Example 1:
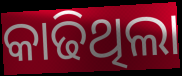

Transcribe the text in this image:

କାଢିଥିଲା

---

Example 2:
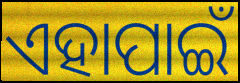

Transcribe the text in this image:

ଏହାପାଇଁ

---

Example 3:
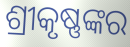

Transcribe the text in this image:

ଶ୍ରୀକୃଷ୍ଣଙ୍କର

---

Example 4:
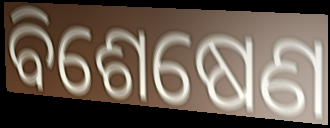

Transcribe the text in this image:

ବିଶେଷେଣ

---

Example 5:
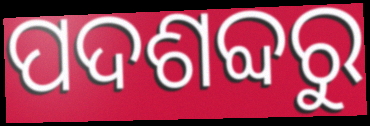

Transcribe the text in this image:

ପଦଶବ୍ଦରୁ